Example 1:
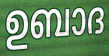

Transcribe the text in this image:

ഉബാദ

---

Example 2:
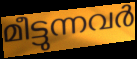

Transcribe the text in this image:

മീട്ടുന്നവർ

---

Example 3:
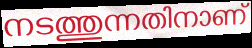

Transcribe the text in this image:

നടത്തുന്നതിനാണ്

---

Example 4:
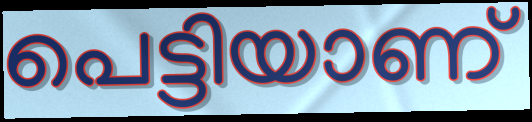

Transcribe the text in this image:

പെട്ടിയാണ്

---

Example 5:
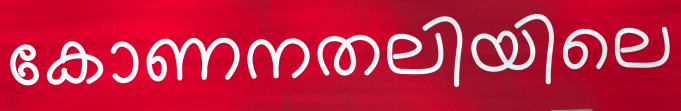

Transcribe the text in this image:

കോണനതലിയിലെ